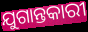
ଯୁଗାନ୍ତକାରୀ